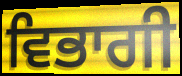
ਵਿਭਾਗੀ